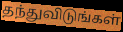
தந்துவிடுங்கள்